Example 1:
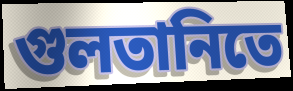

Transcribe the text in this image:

গুলতানিতে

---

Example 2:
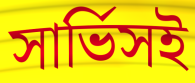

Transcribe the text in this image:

সার্ভিসই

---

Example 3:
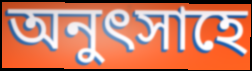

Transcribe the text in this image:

অনুৎসাহে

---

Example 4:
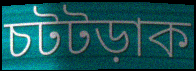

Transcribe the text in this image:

চটটড়াক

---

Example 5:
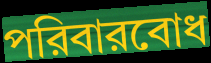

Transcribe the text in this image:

পরিবারবোধ